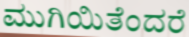
ಮುಗಿಯಿತೆಂದರೆ